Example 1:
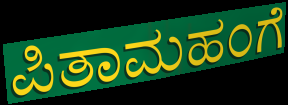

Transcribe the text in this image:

ಪಿತಾಮಹಂಗೆ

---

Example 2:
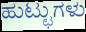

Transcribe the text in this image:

ಹುಟ್ಟುಗಳು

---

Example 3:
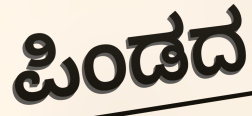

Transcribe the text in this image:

ಪಿಂಡದ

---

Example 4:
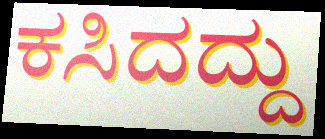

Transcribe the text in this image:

ಕಸಿದದ್ದು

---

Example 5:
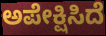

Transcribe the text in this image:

ಅಪೇಕ್ಷಿಸಿದೆ